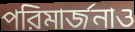
পরিমার্জনাও